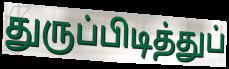
துருப்பிடித்துப்